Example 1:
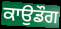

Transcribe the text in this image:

ਕਾਉਡੌਗ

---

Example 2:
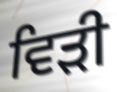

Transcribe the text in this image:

ਵਿੜੀ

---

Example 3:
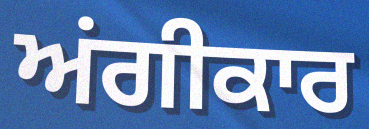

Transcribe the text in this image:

ਅਂਗੀਕਾਰ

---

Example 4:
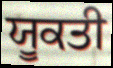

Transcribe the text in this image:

ਯੂਕਤੀ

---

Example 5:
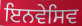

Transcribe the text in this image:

ਇਨਵੇਸਿਵ